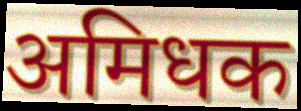
अमिधक